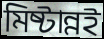
মিষ্টান্নই